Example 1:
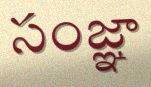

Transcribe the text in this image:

సంజ్ఞా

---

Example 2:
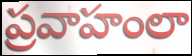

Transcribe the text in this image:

ప్రవాహంలా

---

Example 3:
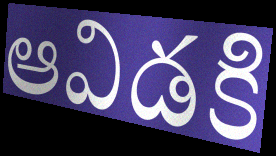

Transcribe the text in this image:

ఆవిడకి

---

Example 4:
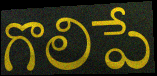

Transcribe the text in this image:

గొలిపే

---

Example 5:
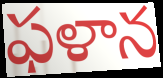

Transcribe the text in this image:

ఫళాన